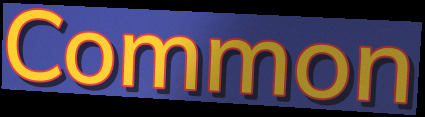
Common